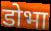
डोभा